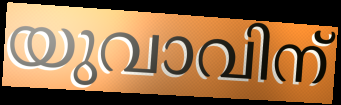
യുവാവിന്